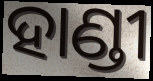
ହାଣ୍ଡୀ